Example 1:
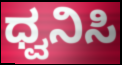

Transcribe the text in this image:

ಧ್ವನಿಸಿ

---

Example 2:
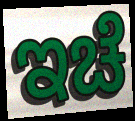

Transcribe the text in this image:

ಇಚೆ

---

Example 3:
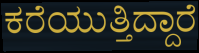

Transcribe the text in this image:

ಕರೆಯುತ್ತಿದ್ದಾರೆ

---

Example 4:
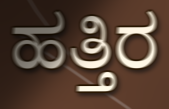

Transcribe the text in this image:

ಹತ್ತಿರ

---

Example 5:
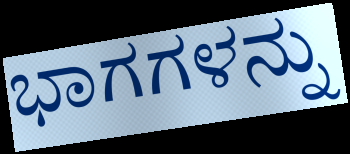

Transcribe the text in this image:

ಭಾಗಗಳನ್ನು